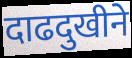
दाढदुखीने